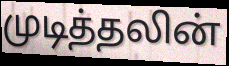
முடித்தலின்